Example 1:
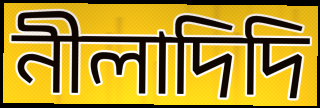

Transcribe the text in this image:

নীলাদিদি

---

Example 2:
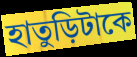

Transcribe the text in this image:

হাতুড়িটাকে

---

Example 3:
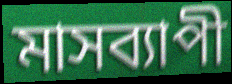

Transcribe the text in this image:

মাসব্যাপী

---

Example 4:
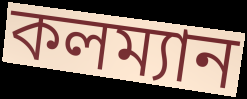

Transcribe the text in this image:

কলম্যান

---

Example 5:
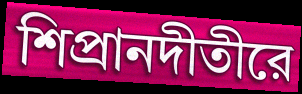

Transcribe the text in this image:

শিপ্রানদীতীরে